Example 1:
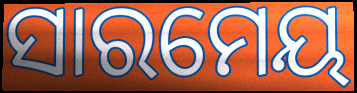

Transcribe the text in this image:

ସାରମେୟ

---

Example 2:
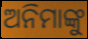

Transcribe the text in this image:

ଅନିମାଙ୍କୁ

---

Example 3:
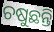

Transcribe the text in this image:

ଚଷୁଛନ୍ତି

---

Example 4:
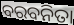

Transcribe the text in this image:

ବରବନିତା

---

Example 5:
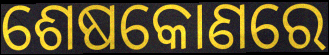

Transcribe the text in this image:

ଶେଷକୋଣରେ